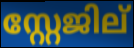
സ്റ്റേജില്